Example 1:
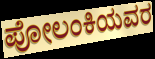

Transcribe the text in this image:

ಪೋಲಂಕಿಯವರ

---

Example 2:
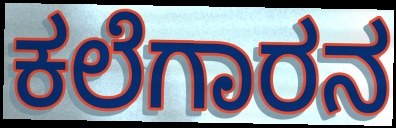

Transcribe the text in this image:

ಕಲೆಗಾರನ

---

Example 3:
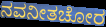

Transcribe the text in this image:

ನವನೀತಚೋರ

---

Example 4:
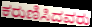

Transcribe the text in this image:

ಕರುಣಿಸಿದವರು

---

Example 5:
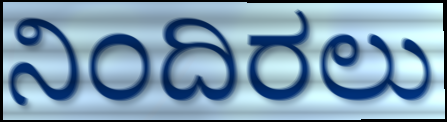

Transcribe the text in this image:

ನಿಂದಿರಲು